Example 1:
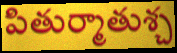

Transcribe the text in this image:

పితుర్మాతుశ్చ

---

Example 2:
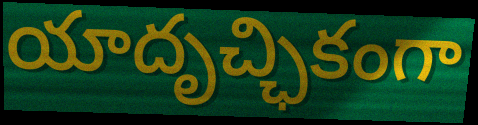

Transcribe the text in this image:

యాదృచ్ఛికంగా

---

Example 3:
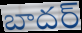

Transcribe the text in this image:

బాదర్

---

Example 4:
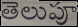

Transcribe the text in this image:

తెలుపూ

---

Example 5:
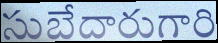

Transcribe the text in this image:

సుబేదారుగారి